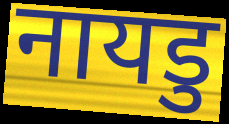
नायडु